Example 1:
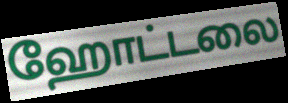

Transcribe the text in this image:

ஹோட்டலை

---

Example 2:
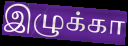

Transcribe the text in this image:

இழுக்கா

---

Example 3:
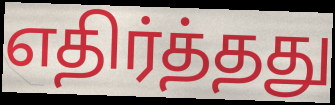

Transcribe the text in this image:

எதிர்த்தது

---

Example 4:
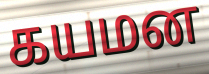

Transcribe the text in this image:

கயமன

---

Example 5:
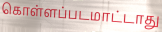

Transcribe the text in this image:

கொள்ளப்படமாட்டாது